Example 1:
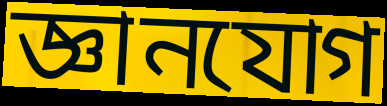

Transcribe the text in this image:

জ্ঞানযোগ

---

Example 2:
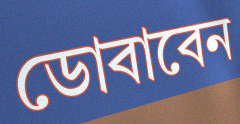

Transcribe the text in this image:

ডোবাবেন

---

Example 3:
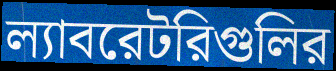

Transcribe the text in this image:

ল্যাবরেটরিগুলির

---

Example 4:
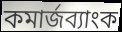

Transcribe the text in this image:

কমার্জব্যাংক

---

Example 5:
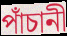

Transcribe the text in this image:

পাঁচানী